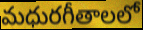
మధురగీతాలలో